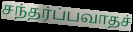
சந்தர்ப்பவாதச்